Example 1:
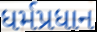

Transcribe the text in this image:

ધર્મપ્રધાન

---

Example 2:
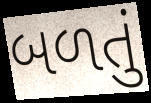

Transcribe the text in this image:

બળતું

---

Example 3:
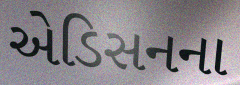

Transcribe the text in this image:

એડિસનના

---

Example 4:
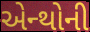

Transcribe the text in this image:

એન્થોની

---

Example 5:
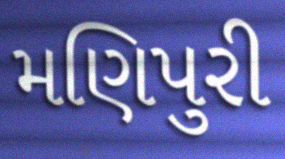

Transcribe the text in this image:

મણિપુરી